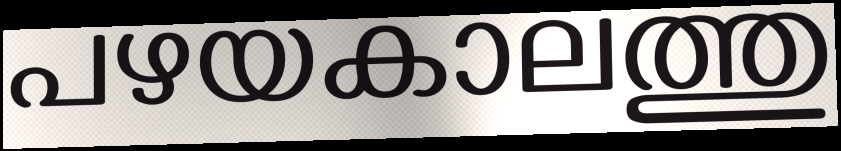
പഴയകാലത്തു